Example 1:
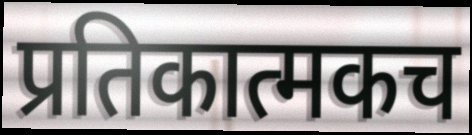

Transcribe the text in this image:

प्रतिकात्मकच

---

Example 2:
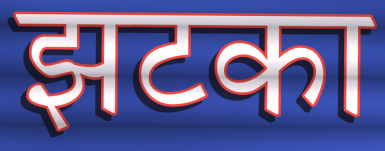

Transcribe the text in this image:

झटका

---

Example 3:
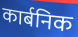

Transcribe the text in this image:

कार्बनिक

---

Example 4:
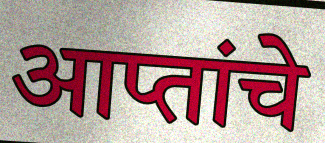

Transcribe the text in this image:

आप्तांचे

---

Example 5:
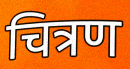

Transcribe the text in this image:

चित्रण